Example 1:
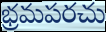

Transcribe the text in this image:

భ్రమపరచు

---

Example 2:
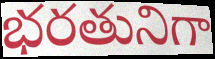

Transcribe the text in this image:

భరతునిగా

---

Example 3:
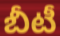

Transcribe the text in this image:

బీటీ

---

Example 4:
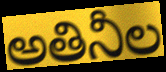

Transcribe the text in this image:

అతినీల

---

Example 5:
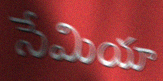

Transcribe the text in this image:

సేమియా